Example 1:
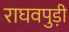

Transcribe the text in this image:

राघवपुड़ी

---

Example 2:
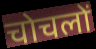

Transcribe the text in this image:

चोचलों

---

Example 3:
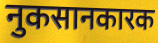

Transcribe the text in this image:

नुकसानकारक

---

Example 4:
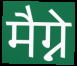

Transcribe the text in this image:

मैग्ने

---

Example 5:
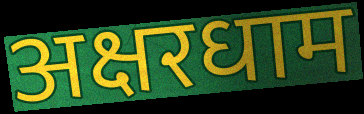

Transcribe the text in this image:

अक्षरधाम